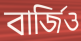
বার্জিও